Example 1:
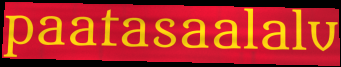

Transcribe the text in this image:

paatasaalalu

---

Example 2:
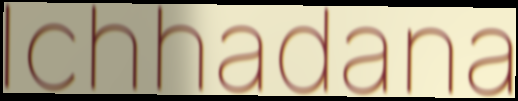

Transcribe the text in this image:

Ichhadana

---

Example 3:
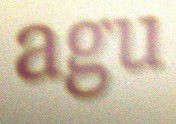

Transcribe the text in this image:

agu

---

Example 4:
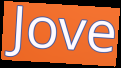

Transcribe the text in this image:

Jove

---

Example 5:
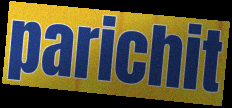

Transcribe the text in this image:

parichit